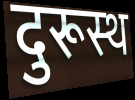
दुरूस्थ